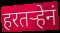
हरतर्‍हेनं